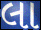
લા